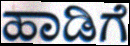
ಹಾಡಿಗೆ